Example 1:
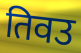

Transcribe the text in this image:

तिवउ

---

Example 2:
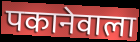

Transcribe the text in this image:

पकानेवाला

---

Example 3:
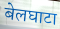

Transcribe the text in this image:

बेलघाटा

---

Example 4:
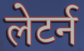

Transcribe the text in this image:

लेटर्न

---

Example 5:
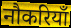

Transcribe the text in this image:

नौकरियाँ